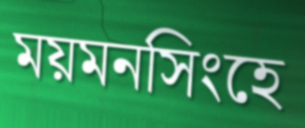
ময়মনসিংহে